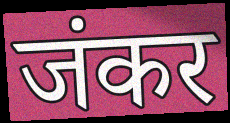
जंकर